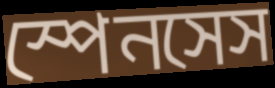
স্পেনসেস